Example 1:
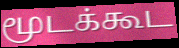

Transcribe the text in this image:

மூடக்கூட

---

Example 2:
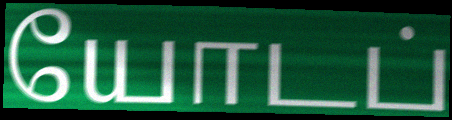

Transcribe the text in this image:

யோடப்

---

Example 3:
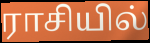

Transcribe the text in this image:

ராசியில்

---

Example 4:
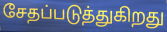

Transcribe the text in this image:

சேதப்படுத்துகிறது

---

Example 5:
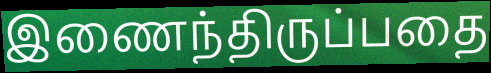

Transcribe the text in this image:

இணைந்திருப்பதை